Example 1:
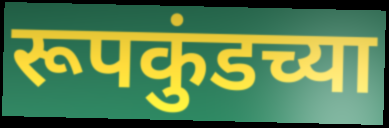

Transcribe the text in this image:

रूपकुंडच्या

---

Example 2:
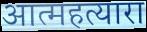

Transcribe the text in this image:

आत्महत्यारा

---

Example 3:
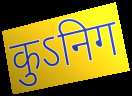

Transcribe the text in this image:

कुऽनिग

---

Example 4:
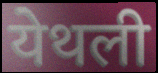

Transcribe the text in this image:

येथली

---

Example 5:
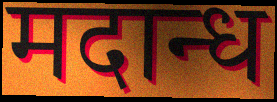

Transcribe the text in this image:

मदान्ध